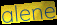
alene